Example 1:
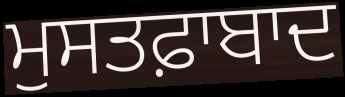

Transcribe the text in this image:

ਮੁਸਤਫ਼ਾਬਾਦ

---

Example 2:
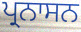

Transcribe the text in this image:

ਪ੍ਰਨਾਸਨ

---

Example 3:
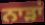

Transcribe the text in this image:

ਨਾੜਾਂ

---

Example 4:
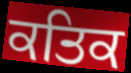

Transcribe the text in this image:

ਕਤਿਕ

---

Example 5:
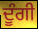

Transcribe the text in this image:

ਦੂੰਗੀ